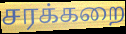
சரக்கறை